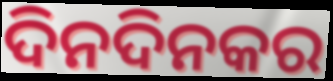
ଦିନଦିନକର